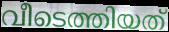
വീടെത്തിയത്